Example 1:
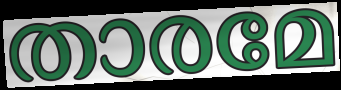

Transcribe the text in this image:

താരമേ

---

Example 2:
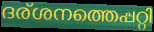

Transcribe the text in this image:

ദര്ശനത്തെപ്പറ്റി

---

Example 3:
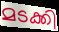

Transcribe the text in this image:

മടക്കി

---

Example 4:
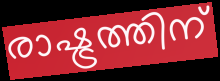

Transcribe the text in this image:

രാഷ്ട്രത്തിന്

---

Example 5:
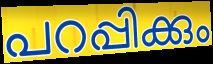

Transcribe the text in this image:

പറപ്പിക്കും